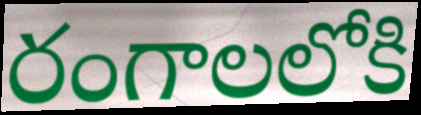
రంగాలలోకి